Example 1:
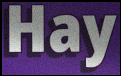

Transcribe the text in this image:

Hay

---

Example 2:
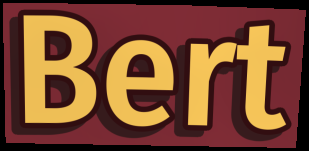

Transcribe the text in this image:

Bert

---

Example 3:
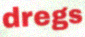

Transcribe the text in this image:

dregs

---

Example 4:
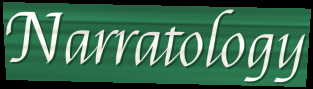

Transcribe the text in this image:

Narratology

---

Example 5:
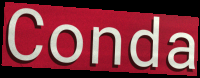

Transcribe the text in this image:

Conda